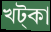
খট্কা